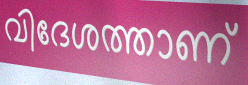
വിദേശത്താണ്